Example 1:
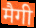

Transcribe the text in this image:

मैगी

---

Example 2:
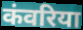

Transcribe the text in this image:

कंवरिया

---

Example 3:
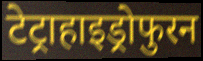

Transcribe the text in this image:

टेट्राहाइड्रोफुरन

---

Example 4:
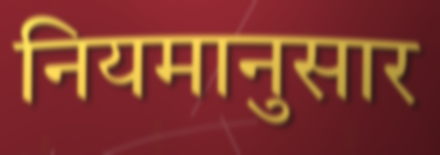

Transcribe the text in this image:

नियमानुसार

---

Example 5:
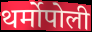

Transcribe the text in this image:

थर्मोपोली